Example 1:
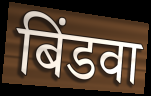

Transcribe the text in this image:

बिंडवा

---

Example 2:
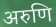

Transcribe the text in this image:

अरुणि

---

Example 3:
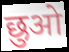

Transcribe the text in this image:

छुओ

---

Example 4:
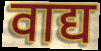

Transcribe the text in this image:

वाद्य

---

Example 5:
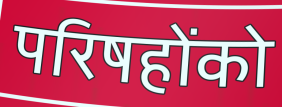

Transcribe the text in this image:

परिषहोंको